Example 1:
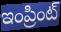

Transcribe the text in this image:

ఇంప్రింట్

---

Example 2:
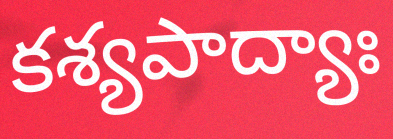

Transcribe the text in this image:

కశ్యపాద్యాః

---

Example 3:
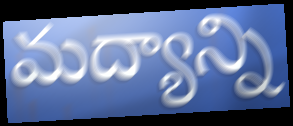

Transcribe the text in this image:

మద్యాన్ని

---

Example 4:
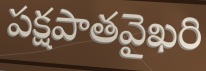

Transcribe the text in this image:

పక్షపాతవైఖరి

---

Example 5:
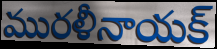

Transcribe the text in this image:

మురళీనాయక్